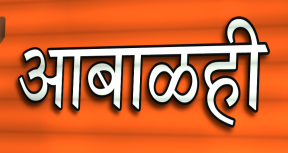
आबाळही